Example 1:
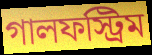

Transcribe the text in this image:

গালফস্ট্রিম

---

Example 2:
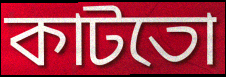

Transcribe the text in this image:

কাটতো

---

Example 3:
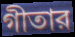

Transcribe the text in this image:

গীতার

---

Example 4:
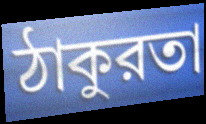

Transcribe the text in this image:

ঠাকুরতা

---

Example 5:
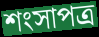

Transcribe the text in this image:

শংসাপত্র